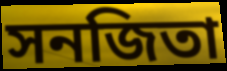
সনজিতা